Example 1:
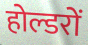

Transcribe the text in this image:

होल्‍डरों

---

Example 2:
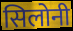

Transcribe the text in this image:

सिलोनी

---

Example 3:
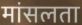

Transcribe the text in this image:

मांसलता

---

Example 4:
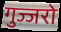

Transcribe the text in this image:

गुज्जरो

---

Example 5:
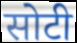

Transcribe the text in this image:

सोटी